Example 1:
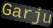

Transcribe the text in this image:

Garju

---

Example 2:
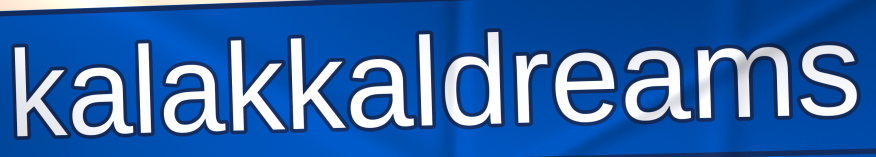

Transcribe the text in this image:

kalakkaldreams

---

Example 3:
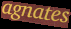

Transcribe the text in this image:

agnates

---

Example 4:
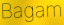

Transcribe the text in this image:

Bagam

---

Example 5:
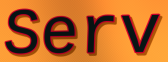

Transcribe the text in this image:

Serv